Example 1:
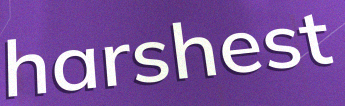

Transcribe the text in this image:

harshest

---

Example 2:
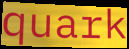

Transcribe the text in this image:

quark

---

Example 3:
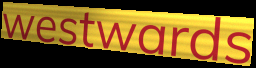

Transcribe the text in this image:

westwards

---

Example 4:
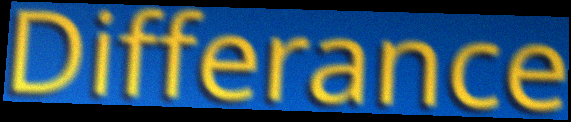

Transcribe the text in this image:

Differance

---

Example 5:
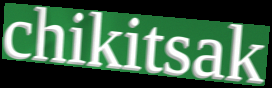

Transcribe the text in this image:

chikitsak